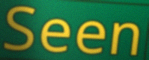
Seen